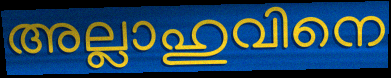
അല്ലാഹുവിനെ